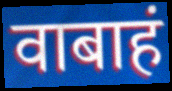
वाबाहं